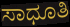
ಸಾಧೂತಿ